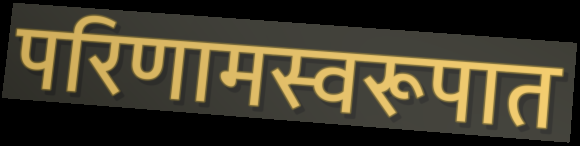
परिणामस्वरूपात